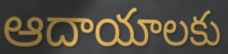
ఆదాయాలకు